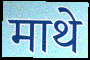
माथे